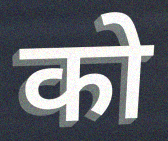
को